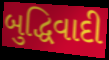
બુદ્ધિવાદી